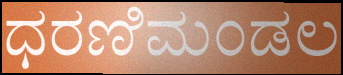
ಧರಣಿಮಂಡಲ